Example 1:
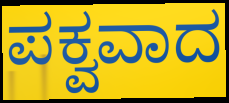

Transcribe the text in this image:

ಪಕ್ವವಾದ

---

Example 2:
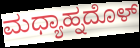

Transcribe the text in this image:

ಮಧ್ಯಾಹ್ನದೊಳ್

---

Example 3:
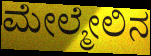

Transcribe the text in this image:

ಮೇಲ್ಮೇಲಿನ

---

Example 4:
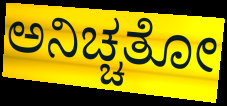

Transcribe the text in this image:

ಅನಿಚ್ಚತೋ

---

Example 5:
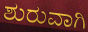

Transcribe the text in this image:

ಶುರುವಾಗಿ